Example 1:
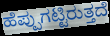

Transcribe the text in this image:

ಹೆಪ್ಪುಗಟ್ಟಿರುತ್ತದೆ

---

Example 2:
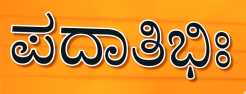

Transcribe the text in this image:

ಪದಾತಿಭಿಃ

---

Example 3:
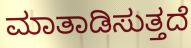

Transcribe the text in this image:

ಮಾತಾಡಿಸುತ್ತದೆ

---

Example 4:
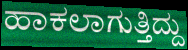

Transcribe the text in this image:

ಹಾಕಲಾಗುತ್ತಿದ್ದು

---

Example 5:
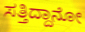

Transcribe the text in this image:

ಸತ್ತಿದ್ದಾನೋ